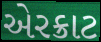
એરક્રાટ